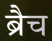
ब्रैच